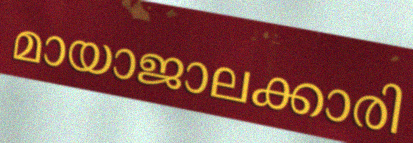
മായാജാലക്കാരി